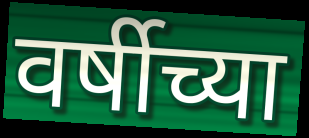
वर्षीच्या